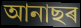
আনাছৰ